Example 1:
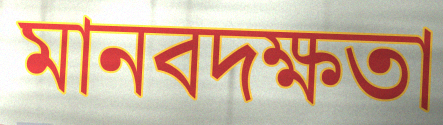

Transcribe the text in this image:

মানবদক্ষতা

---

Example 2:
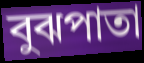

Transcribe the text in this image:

বুঝপাতা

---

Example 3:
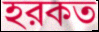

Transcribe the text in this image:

হরকত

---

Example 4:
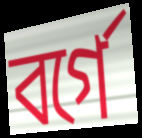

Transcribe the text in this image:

বর্গে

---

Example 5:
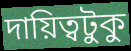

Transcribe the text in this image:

দায়িত্বটুকু